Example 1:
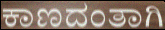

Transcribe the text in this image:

ಕಾಣದಂತಾಗಿ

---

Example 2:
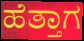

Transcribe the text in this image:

ಹೆತ್ತಾಗ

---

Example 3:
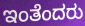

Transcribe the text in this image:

ಇಂತೆಂದರು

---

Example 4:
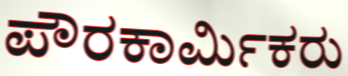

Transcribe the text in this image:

ಪೌರಕಾರ್ಮಿಕರು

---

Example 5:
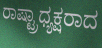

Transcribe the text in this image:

ರಾಷ್ಟ್ರಾಧ್ಯಕ್ಷರಾದ